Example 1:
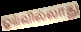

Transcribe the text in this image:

ஓய்வில்லாது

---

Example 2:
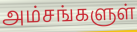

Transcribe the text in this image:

அம்சங்களுள்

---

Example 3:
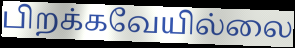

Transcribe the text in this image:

பிறக்கவேயில்லை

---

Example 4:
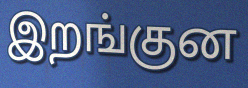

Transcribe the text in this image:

இறங்குன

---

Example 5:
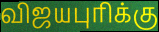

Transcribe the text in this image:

விஜயபுரிக்கு